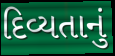
દિવ્યતાનું